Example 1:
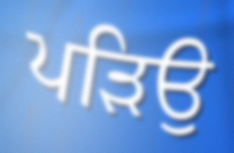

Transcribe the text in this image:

ਪੜਿਉ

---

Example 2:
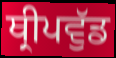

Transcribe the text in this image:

ਥ੍ਰੀਪਵੁੱਡ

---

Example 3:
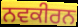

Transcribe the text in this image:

ਨਵਕੀਰਨ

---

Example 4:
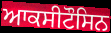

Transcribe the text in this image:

ਆਕਸੀਟੌਸਿਨ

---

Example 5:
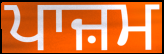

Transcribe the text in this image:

ਪਾਜ਼ਮ